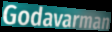
Godavarman